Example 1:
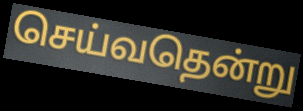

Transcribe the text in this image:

செய்வதென்று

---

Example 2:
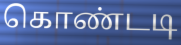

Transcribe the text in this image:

கொண்டடி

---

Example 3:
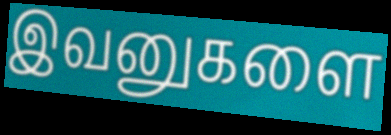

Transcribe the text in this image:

இவனுகளை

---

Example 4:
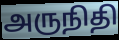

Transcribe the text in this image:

அருநிதி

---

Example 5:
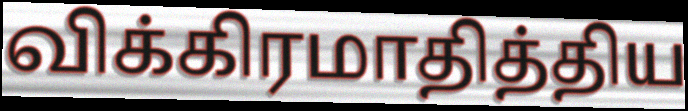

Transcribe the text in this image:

விக்கிரமாதித்திய